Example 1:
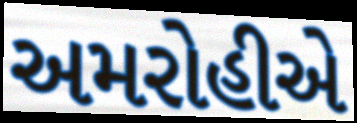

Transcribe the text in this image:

અમરોહીએ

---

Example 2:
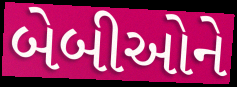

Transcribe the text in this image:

બેબીઓને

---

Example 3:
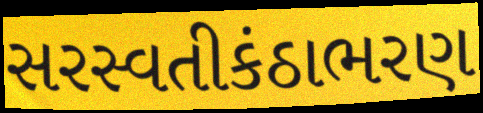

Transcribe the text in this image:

સરસ્વતીકંઠાભરણ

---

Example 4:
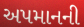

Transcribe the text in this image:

અપમાનની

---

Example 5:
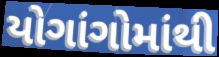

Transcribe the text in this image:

યોગાંગોમાંથી